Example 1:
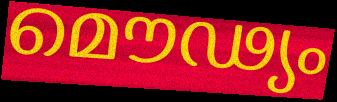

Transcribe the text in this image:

മൌഢ്യം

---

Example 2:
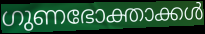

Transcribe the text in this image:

ഗുണഭോക്താക്കൾ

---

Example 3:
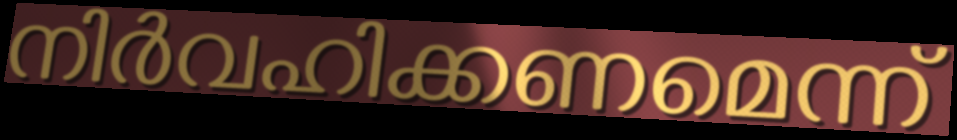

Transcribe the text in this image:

നിർവഹിക്കണമെന്ന്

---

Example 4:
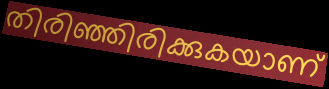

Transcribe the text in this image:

തിരിഞ്ഞിരിക്കുകയാണ്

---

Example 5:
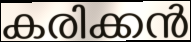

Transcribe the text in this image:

കരിക്കൻ